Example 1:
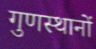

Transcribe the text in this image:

गुणस्थानों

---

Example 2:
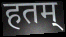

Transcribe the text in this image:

हतम्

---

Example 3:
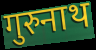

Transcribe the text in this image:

गुरुनाथ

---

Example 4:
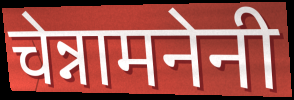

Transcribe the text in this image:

चेन्नामनेनी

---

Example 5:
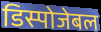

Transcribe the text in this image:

डिस्पोजेबल